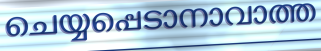
ചെയ്യപ്പെടാനാവാത്ത